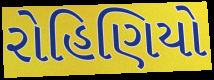
રોહિણિયો